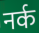
नर्क